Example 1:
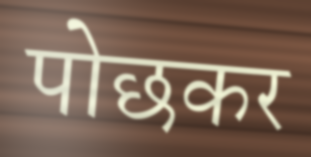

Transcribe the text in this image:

पोछकर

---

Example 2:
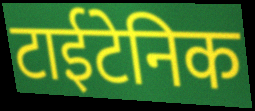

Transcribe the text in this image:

टाईटेनिक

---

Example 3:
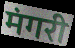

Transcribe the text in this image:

मंगरी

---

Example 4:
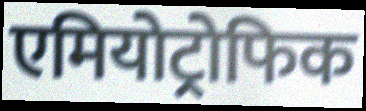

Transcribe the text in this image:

एमियोट्रोफिक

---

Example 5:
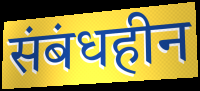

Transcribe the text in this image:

संबंधहीन